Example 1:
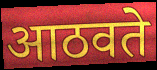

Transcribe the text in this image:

आठवते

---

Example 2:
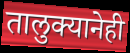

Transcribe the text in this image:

तालुक्यानेही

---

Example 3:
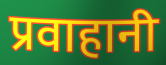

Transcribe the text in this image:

प्रवाहानी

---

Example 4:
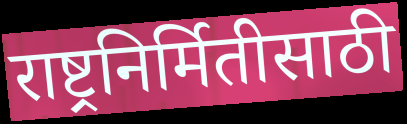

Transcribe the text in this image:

राष्ट्रनिर्मितीसाठी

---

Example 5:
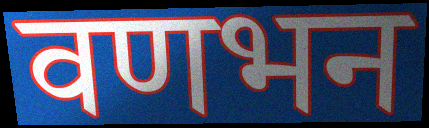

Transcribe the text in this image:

वणभन